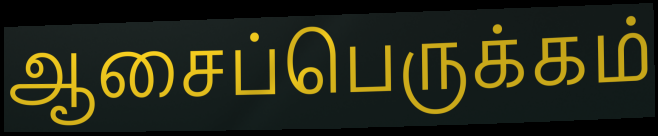
ஆசைப்பெருக்கம்